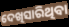
ଦେଖିସାରିଥିବା